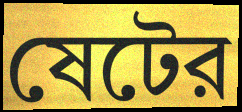
ষেটের